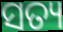
ସତ୍ୟ